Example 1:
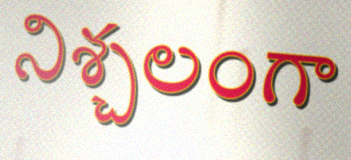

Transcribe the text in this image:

నిశ్చలంగా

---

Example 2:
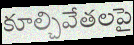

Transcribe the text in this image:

కూల్చివేతలపై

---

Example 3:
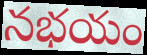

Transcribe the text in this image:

నభయం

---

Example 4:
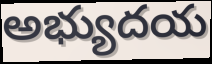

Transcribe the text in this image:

అభ్యుదయ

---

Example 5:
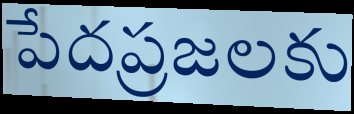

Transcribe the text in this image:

పేదప్రజలకు